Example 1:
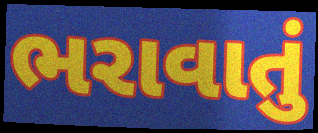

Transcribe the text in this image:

ભરાવાતું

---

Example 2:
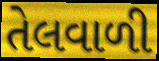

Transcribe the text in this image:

તેલવાળી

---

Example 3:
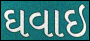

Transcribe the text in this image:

ઘવાઇ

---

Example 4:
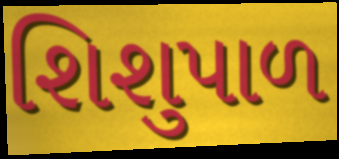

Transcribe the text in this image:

શિશુપાળ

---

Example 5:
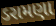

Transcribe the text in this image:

ડરામણા